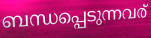
ബന്ധപ്പെടുന്നവര്